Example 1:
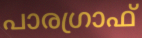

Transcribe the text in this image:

പാരഗ്രാഫ്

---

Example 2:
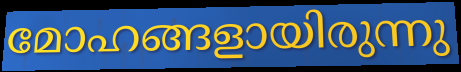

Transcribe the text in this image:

മോഹങ്ങളായിരുന്നു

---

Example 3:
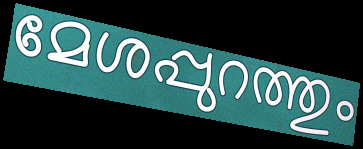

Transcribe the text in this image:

മേശപ്പുറത്തും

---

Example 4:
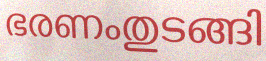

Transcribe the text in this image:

ഭരണംതുടങ്ങി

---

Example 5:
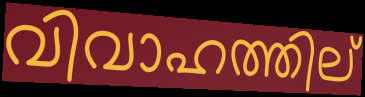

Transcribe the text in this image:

വിവാഹത്തില്